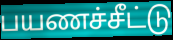
பயணச்சீட்டு